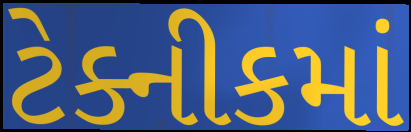
ટેક્નીકમાં